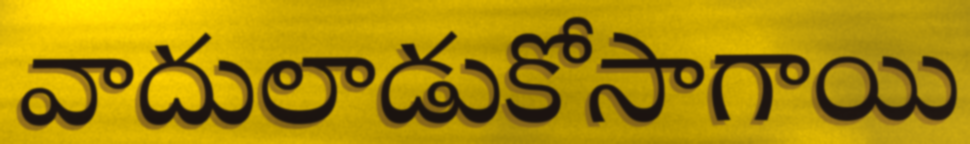
వాదులాడుకోసాగాయి